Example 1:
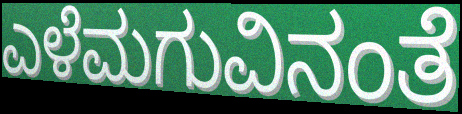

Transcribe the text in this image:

ಎಳೆಮಗುವಿನಂತೆ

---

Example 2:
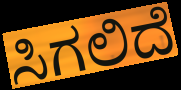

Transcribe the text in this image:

ಸಿಗಲಿದೆ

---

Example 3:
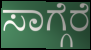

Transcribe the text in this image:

ಸಾಗ್ಗೆರೆ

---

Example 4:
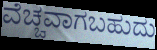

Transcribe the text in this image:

ವೆಚ್ಚವಾಗಬಹುದು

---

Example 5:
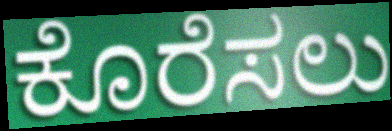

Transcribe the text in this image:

ಕೊರೆಸಲು